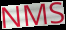
NMS